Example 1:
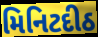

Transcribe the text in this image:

મિનિટદીઠ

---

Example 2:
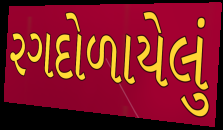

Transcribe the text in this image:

રગદોળાયેલું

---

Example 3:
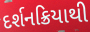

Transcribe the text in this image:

દર્શનક્રિયાથી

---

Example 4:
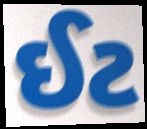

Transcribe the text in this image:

ઈટ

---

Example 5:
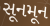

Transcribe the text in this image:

સૂનમૂન